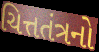
ચિત્તતંત્રનો